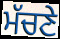
ਮੱਚਣੇ